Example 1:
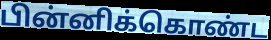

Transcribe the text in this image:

பின்னிக்கொண்ட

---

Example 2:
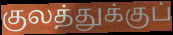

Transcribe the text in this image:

குலத்துக்குப்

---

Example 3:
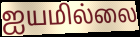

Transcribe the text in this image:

ஐயமில்லை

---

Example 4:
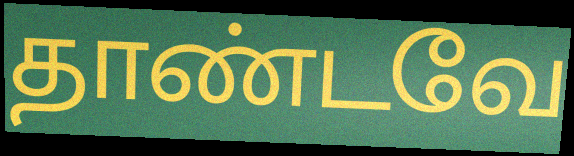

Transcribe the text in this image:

தாண்டவே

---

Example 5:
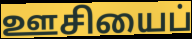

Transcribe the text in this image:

ஊசியைப்